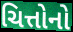
ચિત્તોનો